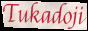
Tukadoji